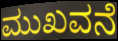
ಮುಖವನೆ